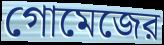
গোমেজের